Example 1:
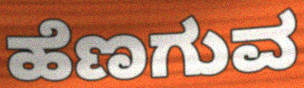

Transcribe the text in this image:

ಹೆಣಗುವ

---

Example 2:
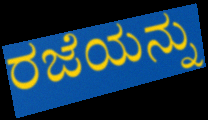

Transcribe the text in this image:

ರಜೆಯನ್ನು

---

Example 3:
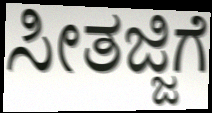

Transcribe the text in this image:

ಸೀತಜ್ಜಿಗೆ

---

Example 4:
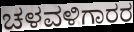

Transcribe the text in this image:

ಚಳವಳಿಗಾರರ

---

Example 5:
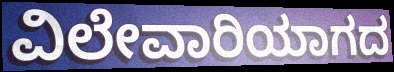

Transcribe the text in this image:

ವಿಲೇವಾರಿಯಾಗದ